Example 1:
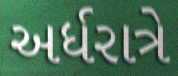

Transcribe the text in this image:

અર્ધરાત્રે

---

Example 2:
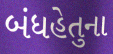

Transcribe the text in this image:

બંધહેતુના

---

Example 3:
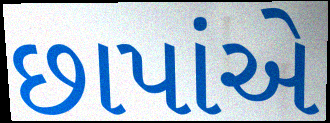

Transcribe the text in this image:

છાપાંએ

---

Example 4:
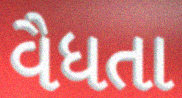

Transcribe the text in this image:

વૈધતા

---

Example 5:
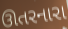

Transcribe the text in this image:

ઊતરનારા